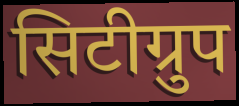
सिटीग्रुप